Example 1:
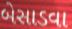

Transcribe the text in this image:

બેસાડવા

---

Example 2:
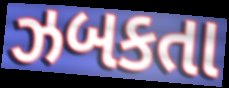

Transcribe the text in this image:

ઝબકતા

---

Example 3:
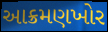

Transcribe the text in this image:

આક્રમણખોર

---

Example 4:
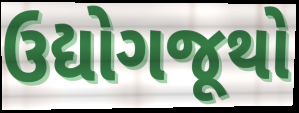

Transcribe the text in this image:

ઉદ્યોગજૂથો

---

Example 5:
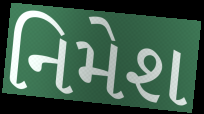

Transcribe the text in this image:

નિમેશ